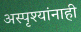
अस्पृश्यांनाही